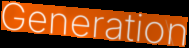
Generation